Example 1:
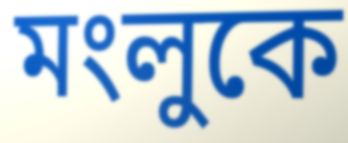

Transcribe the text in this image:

মংলুকে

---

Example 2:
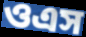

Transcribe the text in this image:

ওএস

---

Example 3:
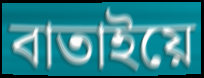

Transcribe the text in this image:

বাতাইয়ে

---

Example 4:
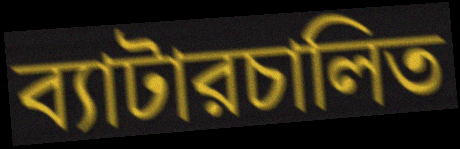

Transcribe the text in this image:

ব্যাটারচালিত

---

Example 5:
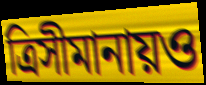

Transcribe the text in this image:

ত্রিসীমানায়ও